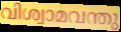
വിശ്വാമവന്തു